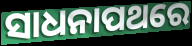
ସାଧନାପଥରେ